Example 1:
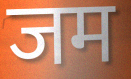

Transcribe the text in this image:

जम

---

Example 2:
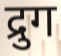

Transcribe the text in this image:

द्रुग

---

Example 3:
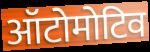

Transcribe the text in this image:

ऑटोमोटिव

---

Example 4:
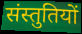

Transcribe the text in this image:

संस्तुतियों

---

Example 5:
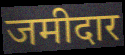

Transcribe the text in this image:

जमीदार